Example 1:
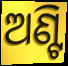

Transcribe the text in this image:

ଅଣ୍ଟି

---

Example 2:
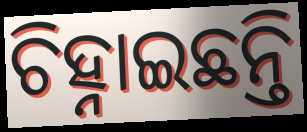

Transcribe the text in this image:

ଚିହ୍ନାଇଛନ୍ତି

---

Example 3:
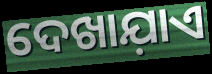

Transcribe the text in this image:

ଦେଖାଯ଼ାଏ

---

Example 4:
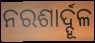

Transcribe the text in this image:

ନରଶାର୍ଦ୍ଦୂଳ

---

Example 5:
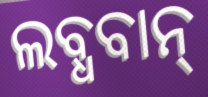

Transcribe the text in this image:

ଲବ୍ଧବାନ୍